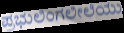
ಪ್ರಭುಲಿಂಗಲೀಲೆಯು